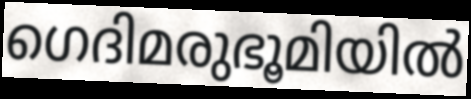
ഗെദിമരുഭൂമിയിൽ